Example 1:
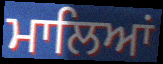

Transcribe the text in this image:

ਮਾਲਿਆਂ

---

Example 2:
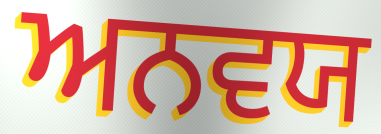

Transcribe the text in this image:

ਅਨਵਯ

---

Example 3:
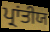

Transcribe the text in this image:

ਪ੍ਰਾਂਤੀਯ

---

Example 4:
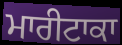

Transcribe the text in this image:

ਮਾਰੀਟਾਕਾ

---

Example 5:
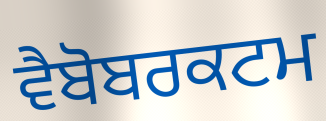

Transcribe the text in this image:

ਵੈਬੋਬਰਕਟਮ